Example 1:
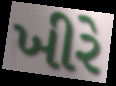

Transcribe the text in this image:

ખીરે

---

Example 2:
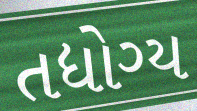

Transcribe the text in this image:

તદ્યોગ્ય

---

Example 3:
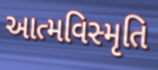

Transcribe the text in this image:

આત્મવિસ્મૃતિ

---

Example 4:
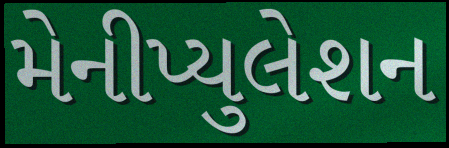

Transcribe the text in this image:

મેનીપ્યુલેશન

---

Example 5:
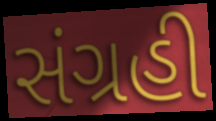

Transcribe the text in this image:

સંગ્રહી